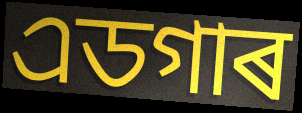
এডগাৰ